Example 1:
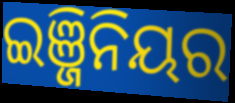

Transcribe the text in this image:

ଇଞ୍ଜିନିୟର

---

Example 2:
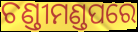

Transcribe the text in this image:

ଚଣ୍ଡୀମଣ୍ଡପରେ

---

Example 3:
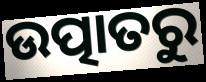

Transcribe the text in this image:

ଉତ୍ପାତରୁ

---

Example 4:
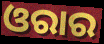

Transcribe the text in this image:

ଓରାର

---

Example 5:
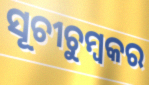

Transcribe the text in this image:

ସୂଚୀଚୁମ୍ବକର